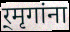
र्मृगांना